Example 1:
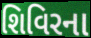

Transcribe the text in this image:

શિવિરના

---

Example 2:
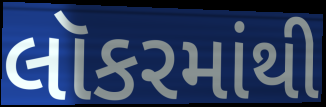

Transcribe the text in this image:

લૉકરમાંથી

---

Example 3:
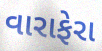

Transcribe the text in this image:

વારાફેરા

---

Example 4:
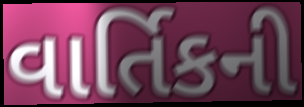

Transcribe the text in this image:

વાર્તિકની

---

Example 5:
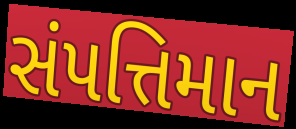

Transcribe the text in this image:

સંપત્તિમાન